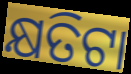
କ୍ଷତିଟା